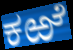
ಕಱೆ